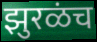
झुरळंच